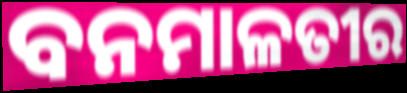
ବନମାଳତୀର